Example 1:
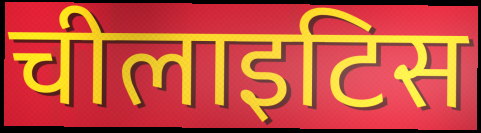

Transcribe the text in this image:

चीलाइटिस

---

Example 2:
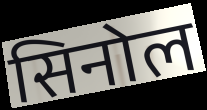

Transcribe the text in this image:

सिनोल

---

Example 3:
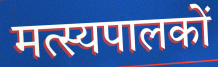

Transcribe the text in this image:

मत्स्यपालकों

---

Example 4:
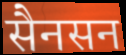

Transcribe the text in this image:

सैनसन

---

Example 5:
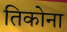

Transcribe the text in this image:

तिकोना